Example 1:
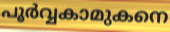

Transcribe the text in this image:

പൂർവ്വകാമുകനെ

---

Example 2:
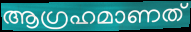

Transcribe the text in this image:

ആഗ്രഹമാണത്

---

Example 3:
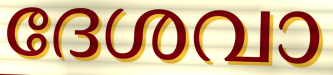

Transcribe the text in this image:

ദേശവാ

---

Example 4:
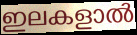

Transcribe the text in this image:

ഇലകളാൽ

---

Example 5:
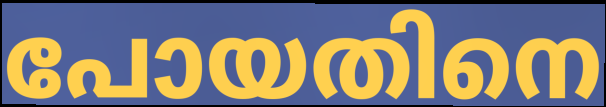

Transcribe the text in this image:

പോയതിനെ